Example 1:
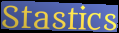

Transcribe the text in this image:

Stastics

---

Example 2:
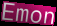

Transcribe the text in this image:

Emon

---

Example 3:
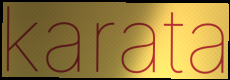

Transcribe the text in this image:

karata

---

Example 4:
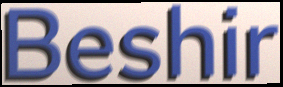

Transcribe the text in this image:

Beshir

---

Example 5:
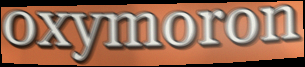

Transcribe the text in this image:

oxymoron